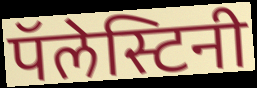
पॅलेस्टिनी